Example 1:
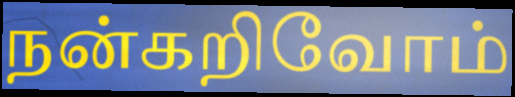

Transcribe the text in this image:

நன்கறிவோம்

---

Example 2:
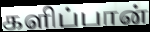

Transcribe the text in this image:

களிப்பான்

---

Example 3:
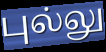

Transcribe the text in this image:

புல்லு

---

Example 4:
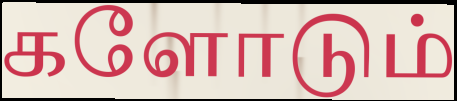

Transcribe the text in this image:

களோடும்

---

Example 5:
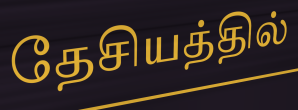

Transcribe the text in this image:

தேசியத்தில்